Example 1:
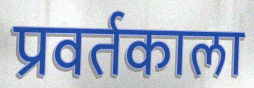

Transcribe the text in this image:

प्रवर्तकाला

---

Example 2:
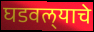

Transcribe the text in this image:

घडवल्याचे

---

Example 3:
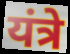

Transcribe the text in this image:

यंत्रे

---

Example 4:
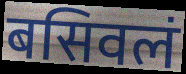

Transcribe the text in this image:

बसिवलं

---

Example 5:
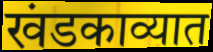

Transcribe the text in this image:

खंडकाव्यात